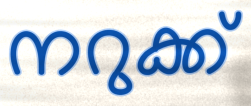
നറുക്ക്